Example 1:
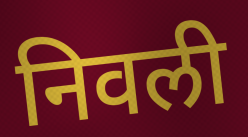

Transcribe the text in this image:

निवली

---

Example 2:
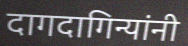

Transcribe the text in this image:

दागदागिन्यांनी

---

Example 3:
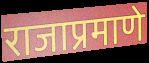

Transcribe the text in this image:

राजाप्रमाणे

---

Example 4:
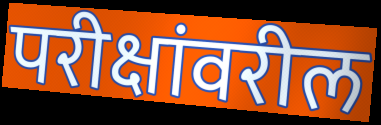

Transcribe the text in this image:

परीक्षांवरील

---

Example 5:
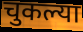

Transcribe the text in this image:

चुकल्या